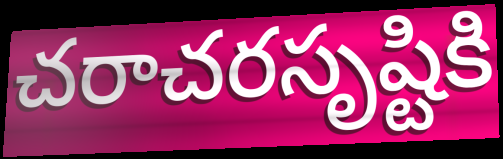
చరాచరసృష్టికి